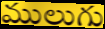
ములుగు